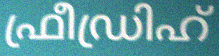
ഫ്രീഡ്രിഹ്